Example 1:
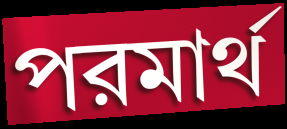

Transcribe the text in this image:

পরমার্থ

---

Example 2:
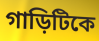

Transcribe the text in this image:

গাড়িটিকে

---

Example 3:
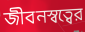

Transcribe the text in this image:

জীবনস্বত্বের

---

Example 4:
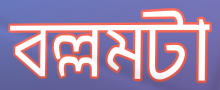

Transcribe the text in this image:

বল্লমটা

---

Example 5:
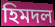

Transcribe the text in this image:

হিমদল